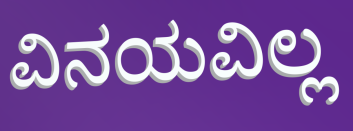
ವಿನಯವಿಲ್ಲ